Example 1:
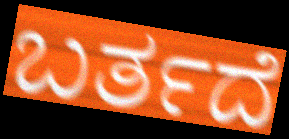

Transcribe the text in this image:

ಬರ್ತದೆ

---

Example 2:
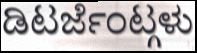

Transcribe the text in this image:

ಡಿಟರ್ಜೆಂಟ್ಗಳು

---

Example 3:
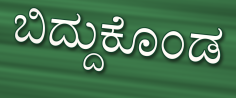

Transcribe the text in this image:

ಬಿದ್ದುಕೊಂಡ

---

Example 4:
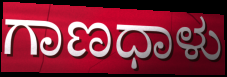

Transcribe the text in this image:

ಗಾಣಧಾಳು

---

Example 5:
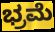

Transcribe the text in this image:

ಭ್ರಮೆ